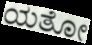
ಯತೋ